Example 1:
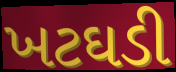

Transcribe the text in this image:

ખટઘડી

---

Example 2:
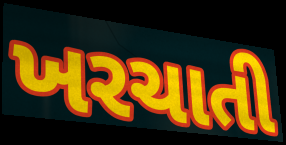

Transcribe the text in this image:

ખરચાતી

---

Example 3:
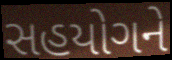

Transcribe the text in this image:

સહયોગને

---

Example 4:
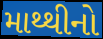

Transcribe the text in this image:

માથ્થીનો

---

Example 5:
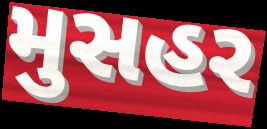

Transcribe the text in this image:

મુસહર